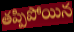
తప్పిపోయిన